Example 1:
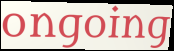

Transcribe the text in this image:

ongoing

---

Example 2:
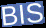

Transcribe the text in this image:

BIS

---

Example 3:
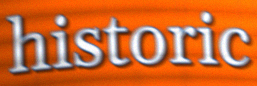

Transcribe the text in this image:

historic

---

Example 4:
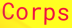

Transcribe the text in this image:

Corps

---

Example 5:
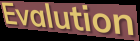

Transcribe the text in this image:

Evalution